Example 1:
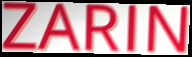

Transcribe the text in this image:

ZARIN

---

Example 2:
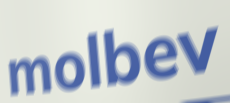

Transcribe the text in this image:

molbev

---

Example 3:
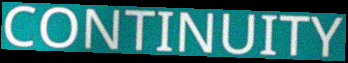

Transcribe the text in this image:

CONTINUITY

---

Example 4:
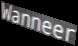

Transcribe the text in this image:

Wanneer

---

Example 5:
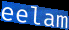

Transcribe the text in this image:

eelam